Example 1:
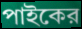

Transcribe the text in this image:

পাইকের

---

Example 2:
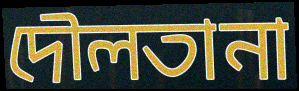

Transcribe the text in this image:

দৌলতানা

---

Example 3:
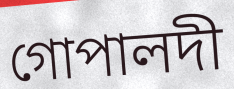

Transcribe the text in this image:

গোপালদী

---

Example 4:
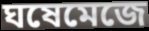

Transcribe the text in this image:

ঘষেমেজে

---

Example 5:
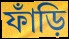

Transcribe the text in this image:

ফাঁড়ি